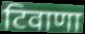
टिवाणा